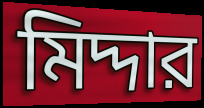
মিদ্দার